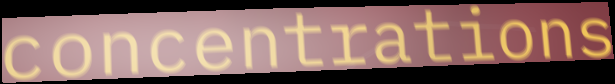
concentrations